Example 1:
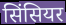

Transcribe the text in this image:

सिंसियर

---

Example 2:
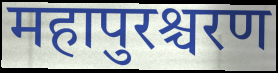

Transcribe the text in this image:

महापुरश्चरण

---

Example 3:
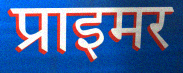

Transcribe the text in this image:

प्राइमर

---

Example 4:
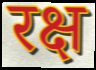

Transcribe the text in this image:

रक्ष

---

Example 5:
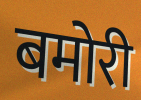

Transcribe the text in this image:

बमोरी